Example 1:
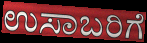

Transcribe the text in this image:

ಉಸಾಬರಿಗೆ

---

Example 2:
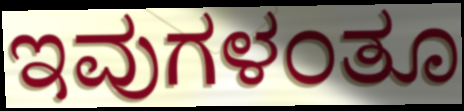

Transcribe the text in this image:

ಇವುಗಳಂತೂ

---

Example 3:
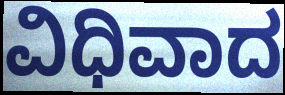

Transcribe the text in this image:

ವಿಧಿವಾದ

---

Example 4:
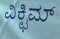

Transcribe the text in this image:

ವಿಕ್ಟಿಮ್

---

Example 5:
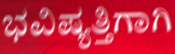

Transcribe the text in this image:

ಭವಿಷ್ಯತ್ತಿಗಾಗಿ